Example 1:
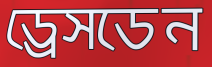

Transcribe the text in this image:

ড্রেসডেন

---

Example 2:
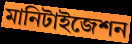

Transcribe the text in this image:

মানিটাইজেশন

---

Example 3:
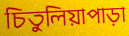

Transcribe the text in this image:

চিতুলিয়াপাড়া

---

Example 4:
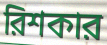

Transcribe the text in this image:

রিশকার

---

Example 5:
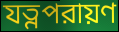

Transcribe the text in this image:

যত্নপরায়ণ